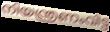
നിയന്ത്രണംവിട്ട